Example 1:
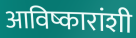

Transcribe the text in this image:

आविष्कारांशी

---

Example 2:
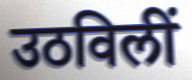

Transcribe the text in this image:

उठविलीं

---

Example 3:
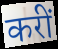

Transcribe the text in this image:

करीं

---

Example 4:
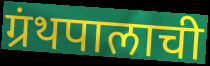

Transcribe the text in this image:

ग्रंथपालाची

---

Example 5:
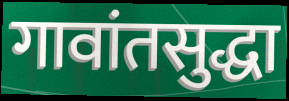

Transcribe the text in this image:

गावांतसुद्धा